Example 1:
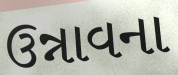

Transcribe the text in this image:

ઉન્નાવના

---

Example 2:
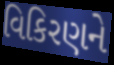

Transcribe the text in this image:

વિકિરણને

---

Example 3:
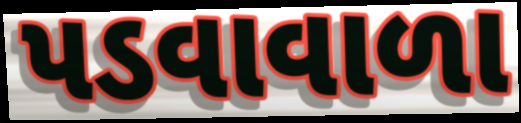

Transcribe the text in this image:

પડવાવાળા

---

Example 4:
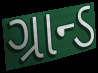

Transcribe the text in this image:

ગ્રાન્ડ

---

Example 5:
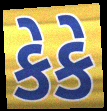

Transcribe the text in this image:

કેકે